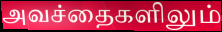
அவச்தைகளிலும்